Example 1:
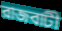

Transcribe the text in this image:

রাজবাটী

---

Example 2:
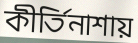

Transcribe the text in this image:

কীর্তিনাশায়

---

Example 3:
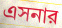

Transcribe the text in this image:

এসনার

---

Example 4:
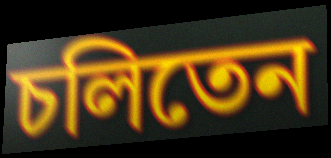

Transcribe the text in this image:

চলিতেন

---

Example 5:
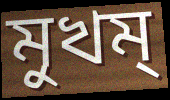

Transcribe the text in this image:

মুখম্